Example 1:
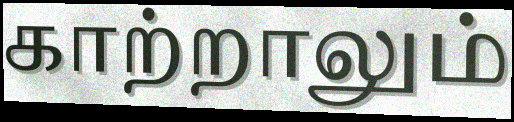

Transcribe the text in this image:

காற்றாலும்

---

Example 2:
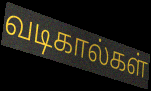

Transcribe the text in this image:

வடிகால்கள்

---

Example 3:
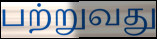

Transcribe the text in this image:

பற்றுவது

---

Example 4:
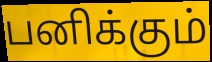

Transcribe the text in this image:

பனிக்கும்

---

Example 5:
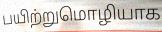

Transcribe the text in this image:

பயிற்றுமொழியாக